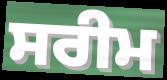
ਸਰੀਮ